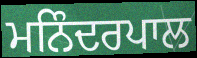
ਮਨਿੰਦਰਪਾਲ